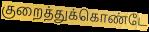
குறைத்துக்கொண்டே